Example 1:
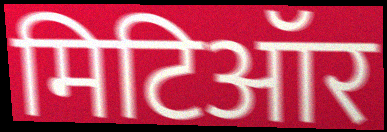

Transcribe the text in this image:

मिटिऑर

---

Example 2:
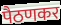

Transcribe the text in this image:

पैठणकर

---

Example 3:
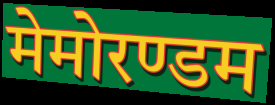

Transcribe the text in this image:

मेमोरण्डम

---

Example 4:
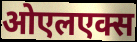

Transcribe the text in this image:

ओएलएक्स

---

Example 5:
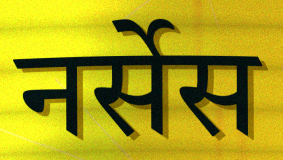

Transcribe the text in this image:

नर्सेस